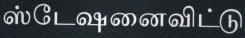
ஸ்டேஷனைவிட்டு